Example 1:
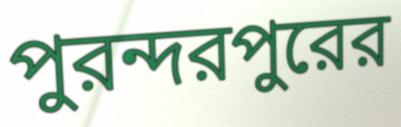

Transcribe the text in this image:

পুরন্দরপুরের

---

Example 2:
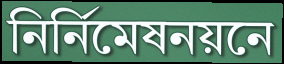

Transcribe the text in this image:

নির্নিমেষনয়নে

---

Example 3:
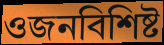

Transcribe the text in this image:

ওজনবিশিষ্ট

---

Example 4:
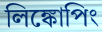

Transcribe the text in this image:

লিঙ্কোপিং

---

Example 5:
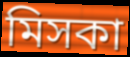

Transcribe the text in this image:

মিসকা